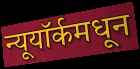
न्यूयॉर्कमधून